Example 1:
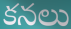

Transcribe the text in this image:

కనలు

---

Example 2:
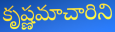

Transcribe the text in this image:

కృష్ణమాచారిని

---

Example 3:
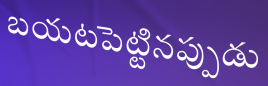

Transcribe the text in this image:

బయటపెట్టినప్పుడు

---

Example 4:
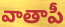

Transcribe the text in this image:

వాతాపీ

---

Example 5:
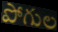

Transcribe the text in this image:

పోగుల